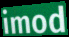
imod